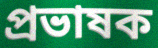
প্রভাষক